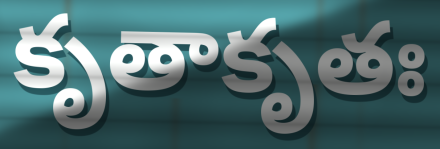
కృతాకృతః